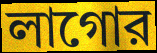
লাগোর